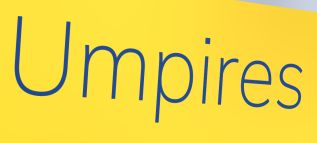
Umpires